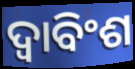
ଦ୍ୱାବିଂଶ